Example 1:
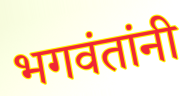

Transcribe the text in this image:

भगवंतांनी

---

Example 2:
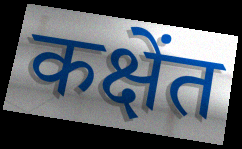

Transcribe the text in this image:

कक्षेंत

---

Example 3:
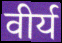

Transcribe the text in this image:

वीर्य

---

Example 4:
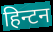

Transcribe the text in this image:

हिन्टन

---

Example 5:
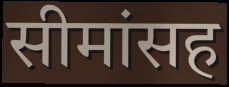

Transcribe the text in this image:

सीमांसह